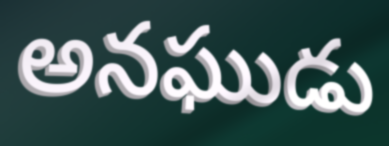
అనఘుడు